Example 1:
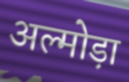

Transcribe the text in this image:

अल्मोड़ा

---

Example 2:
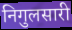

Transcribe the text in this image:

निगुलसारी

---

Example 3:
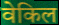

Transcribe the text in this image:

वेकिल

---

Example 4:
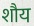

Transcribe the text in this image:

शौय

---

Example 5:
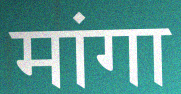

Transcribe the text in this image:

मांगा